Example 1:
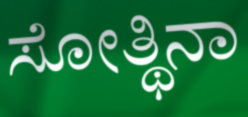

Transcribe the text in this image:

ಸೋತ್ಥಿನಾ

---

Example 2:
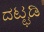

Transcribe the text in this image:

ದಟ್ಟಡಿ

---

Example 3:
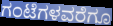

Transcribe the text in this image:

ಗಂಟೆಗಳವರೆಗೂ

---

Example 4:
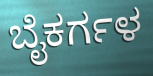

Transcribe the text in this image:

ಬೈಕರ್ಗಳ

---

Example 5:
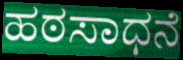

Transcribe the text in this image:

ಹಠಸಾಧನೆ